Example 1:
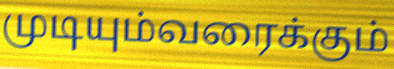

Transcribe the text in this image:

முடியும்வரைக்கும்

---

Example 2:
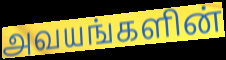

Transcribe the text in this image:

அவயங்களின்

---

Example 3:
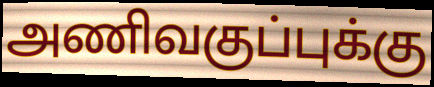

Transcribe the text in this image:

அணிவகுப்புக்கு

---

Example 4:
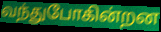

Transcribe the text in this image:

வந்துபோகின்றன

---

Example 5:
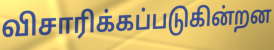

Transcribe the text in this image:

விசாரிக்கப்படுகின்றன